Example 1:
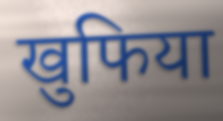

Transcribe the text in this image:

खुफिया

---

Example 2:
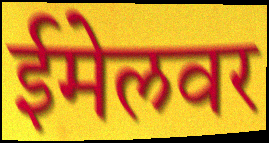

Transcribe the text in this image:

ईमेलवर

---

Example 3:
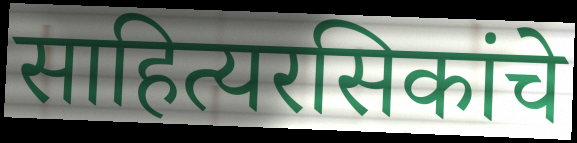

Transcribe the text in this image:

साहित्यरसिकांचे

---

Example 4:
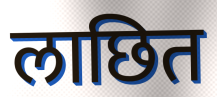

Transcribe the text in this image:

लाछित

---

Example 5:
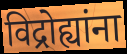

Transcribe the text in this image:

विद्रोह्यांना